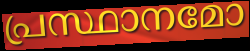
പ്രസ്ഥാനമോ